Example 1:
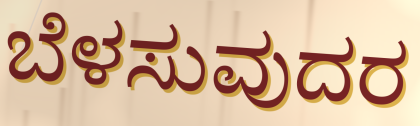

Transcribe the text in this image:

ಬೆಳಸುವುದರ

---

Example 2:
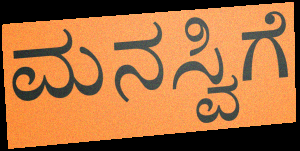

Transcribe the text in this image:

ಮನಸ್ವಿಗೆ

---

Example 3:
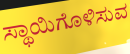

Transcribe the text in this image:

ಸ್ಥಾಯಿಗೊಳಿಸುವ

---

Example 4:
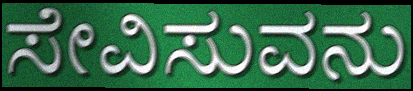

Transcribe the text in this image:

ಸೇವಿಸುವನು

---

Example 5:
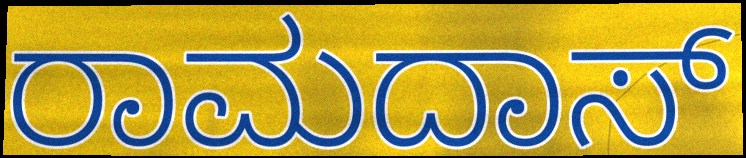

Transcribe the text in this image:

ರಾಮದಾಸ್